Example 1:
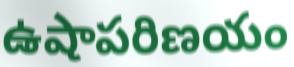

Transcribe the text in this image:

ఉషాపరిణయం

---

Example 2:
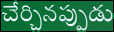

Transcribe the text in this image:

చేర్చినప్పుడు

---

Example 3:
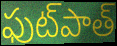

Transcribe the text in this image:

ఫుట్‌పాత్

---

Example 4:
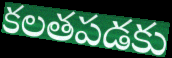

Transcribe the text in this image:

కలతపడకు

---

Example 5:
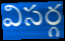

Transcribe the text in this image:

విసర్గ